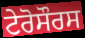
ਟੇਰੋਸੌਰਸ